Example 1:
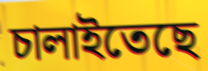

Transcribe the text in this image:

চালাইতেছে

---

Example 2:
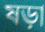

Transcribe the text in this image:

ষড়া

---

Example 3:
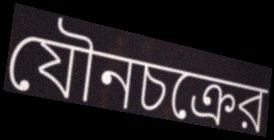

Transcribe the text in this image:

যৌনচক্রের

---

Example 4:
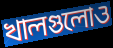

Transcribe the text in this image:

খালগুলোও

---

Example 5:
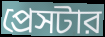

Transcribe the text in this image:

প্রেসটার